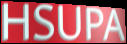
HSUPA